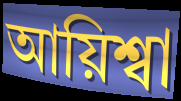
আয়িশ্বা